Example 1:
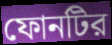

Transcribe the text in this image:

ফোনটির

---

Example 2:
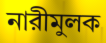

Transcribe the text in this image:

নারীমুলক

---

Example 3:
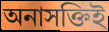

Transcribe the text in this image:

অনাসক্তিই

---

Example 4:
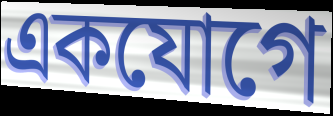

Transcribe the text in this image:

একযোগে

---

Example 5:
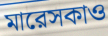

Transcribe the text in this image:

মারেসকাও